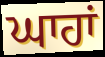
ਘਾਹਾਂ